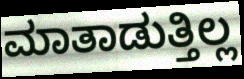
ಮಾತಾಡುತ್ತಿಲ್ಲ